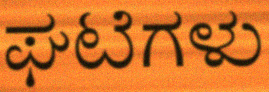
ಘಟೆಗಳು